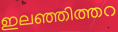
ഇലഞ്ഞിത്തറ